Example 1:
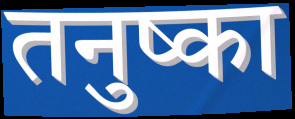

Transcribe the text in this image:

तनुष्का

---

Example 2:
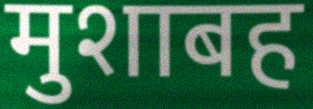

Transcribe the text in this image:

मुशाबह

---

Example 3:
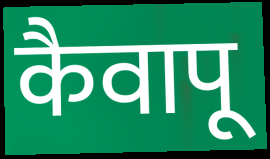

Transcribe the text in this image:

कैवापू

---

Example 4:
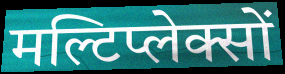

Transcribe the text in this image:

मल्टिप्लेक्सों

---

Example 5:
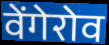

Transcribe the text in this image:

वेंगेरोव